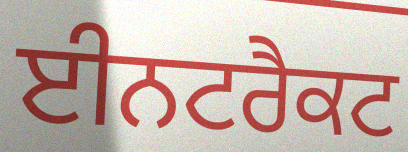
ਈਨਟਰੈਕਟ